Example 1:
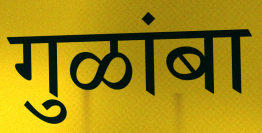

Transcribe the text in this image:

गुळांबा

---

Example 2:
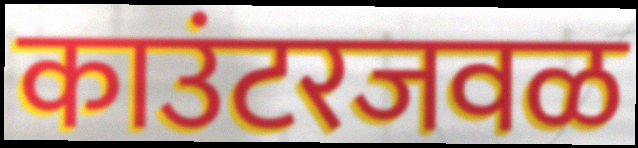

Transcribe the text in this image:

काउंटरजवळ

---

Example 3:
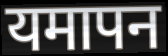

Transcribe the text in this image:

यमापन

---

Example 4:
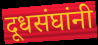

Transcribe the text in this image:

दूधसंघांनी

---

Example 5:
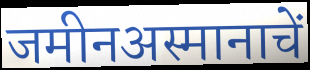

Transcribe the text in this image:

जमीनअस्मानाचें